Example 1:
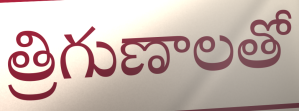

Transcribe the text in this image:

త్రిగుణాలతో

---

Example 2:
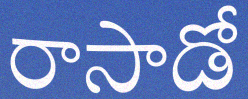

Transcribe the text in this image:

రాసాడో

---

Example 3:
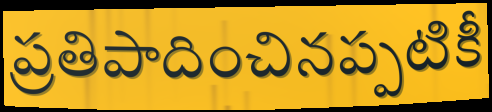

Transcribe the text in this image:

ప్రతిపాదించినప్పటికీ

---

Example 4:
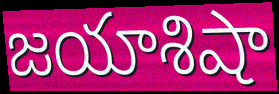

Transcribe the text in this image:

జయాశిషా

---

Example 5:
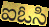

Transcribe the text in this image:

ఐఓసి